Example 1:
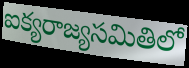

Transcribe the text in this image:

ఐక్యరాజ్యసమితిలో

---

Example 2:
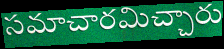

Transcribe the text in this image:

సమాచారమిచ్చారు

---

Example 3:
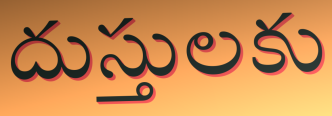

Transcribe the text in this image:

దుస్తులకు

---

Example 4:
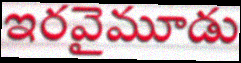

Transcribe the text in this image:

ఇరవైమూడు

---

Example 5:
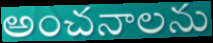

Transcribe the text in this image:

అంచనాలను